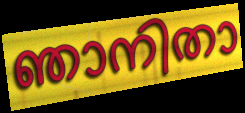
ഞാനിതാ